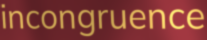
incongruence